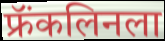
फ्रॅंकलिनला